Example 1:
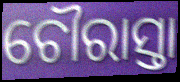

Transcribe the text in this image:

ଚୌରାସ୍ତା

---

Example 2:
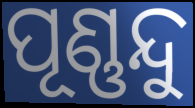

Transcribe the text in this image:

ପୂଣ୍ଣନ୍ଦୁ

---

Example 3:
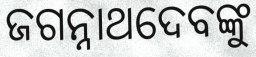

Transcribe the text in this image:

ଜଗନ୍ନାଥଦେବଙ୍କୁ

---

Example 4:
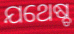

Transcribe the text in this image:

ଯଥେଷ୍ଚ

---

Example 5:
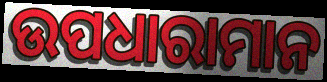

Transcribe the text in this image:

ଉପଧାରାମାନ